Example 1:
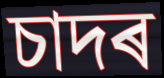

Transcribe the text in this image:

চাদৰ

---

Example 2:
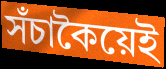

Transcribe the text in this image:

সঁচাকৈয়েই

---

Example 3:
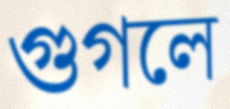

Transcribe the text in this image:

গুগলে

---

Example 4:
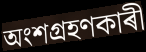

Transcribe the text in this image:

অংশগ্ৰহণকাৰী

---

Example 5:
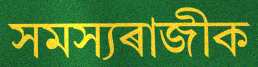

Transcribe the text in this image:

সমস্যৰাজীক